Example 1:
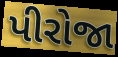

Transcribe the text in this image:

પીરોજા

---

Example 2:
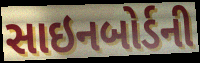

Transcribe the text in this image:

સાઇનબોર્ડની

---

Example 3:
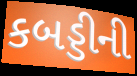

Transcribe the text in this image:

કબડ્ડીની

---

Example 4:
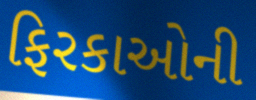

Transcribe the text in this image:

ફિરકાઓની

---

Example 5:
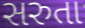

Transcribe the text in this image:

સરુતા